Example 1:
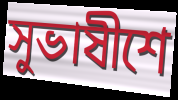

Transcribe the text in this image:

সুভাষীশে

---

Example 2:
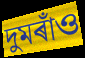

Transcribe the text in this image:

দুমৰাঁও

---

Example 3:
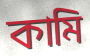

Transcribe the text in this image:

কামি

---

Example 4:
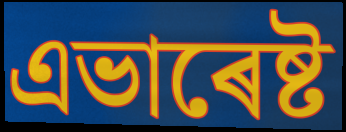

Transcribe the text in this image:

এভাৰেষ্ট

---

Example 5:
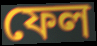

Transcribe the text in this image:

ফেল